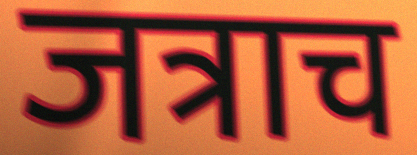
जत्राच